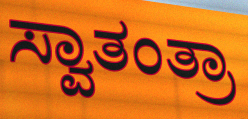
ಸ್ವಾತಂತ್ರಾ